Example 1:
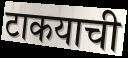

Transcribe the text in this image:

टाकयाची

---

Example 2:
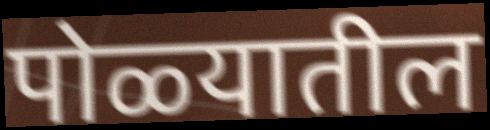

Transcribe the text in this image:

पोळ्यातील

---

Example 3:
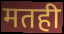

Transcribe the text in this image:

मतही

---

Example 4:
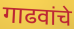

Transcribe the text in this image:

गाढवांचे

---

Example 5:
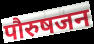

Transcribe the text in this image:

पौरुषजन